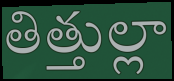
తిత్తుల్లా